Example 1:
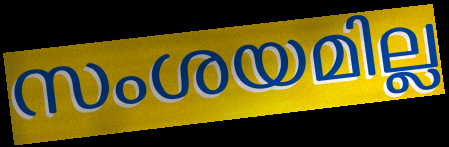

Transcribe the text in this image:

സംശയമില്ല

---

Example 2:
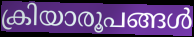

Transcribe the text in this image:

ക്രിയാരൂപങ്ങൾ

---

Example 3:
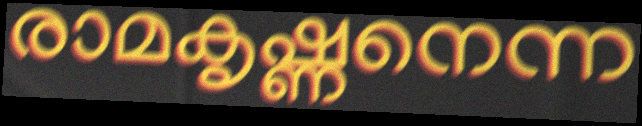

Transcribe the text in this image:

രാമകൃഷ്ണനെന്ന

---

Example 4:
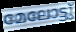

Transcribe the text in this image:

മേലോട്ടു്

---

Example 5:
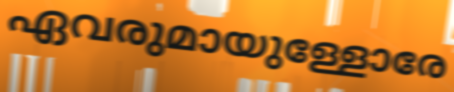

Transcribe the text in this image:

ഏവരുമായുള്ളോരേ